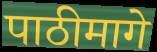
पाठीमागे